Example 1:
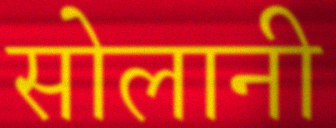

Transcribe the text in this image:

सोलानी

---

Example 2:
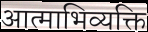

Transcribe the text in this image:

आत्माभिव्यक्ति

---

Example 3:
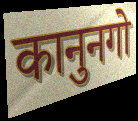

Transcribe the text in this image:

कानुनगो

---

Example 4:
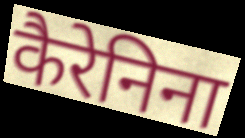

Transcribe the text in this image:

कैरेनिना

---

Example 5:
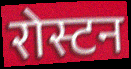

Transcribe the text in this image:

रोस्टन